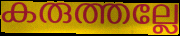
കരുത്തല്ലേ